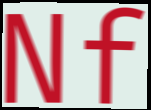
Nf